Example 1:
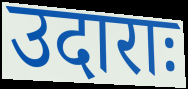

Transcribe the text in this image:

उदाराः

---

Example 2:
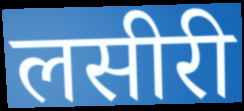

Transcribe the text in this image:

लसीरी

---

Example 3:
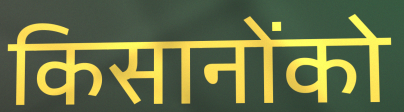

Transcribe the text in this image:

किसानोंको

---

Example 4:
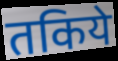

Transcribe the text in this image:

तकिये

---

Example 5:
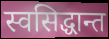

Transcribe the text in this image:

स्वसिद्धान्त